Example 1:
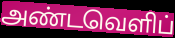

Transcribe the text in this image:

அண்டவெளிப்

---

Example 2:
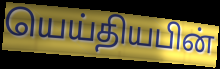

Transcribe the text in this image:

யெய்தியபின்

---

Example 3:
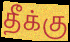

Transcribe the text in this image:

தீக்கு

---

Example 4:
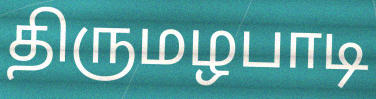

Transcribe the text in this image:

திருமழபாடி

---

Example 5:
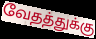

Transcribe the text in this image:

வேதத்துக்கு